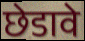
छेडावे